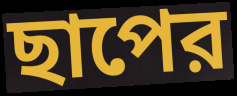
ছাপের